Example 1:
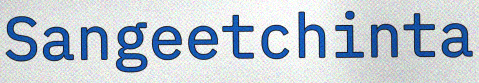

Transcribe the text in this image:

Sangeetchinta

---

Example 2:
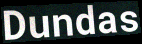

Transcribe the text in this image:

Dundas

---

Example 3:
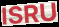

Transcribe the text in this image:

ISRU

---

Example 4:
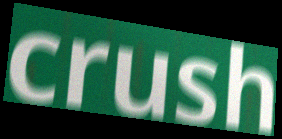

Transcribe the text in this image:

crush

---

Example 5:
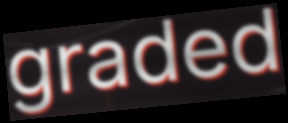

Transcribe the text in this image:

graded